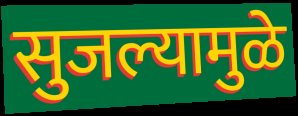
सुजल्यामुळे